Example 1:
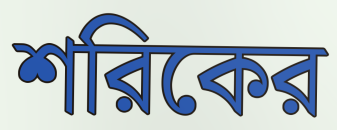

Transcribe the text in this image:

শরিকের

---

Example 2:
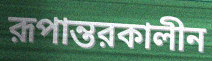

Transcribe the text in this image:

রূপান্তরকালীন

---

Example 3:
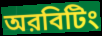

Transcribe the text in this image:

অরবিটিং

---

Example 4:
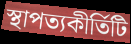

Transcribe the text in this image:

স্থাপত্যকীর্তিটি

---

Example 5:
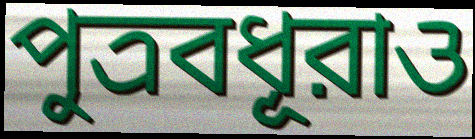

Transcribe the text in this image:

পুত্রবধূরাও